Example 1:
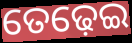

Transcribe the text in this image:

ତେଢ଼େଇ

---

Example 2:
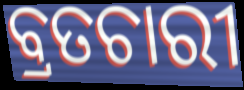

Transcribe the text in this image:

ବ୍ରତଚାରୀ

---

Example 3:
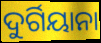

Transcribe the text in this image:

ଦୁର୍ଗିୟାନା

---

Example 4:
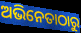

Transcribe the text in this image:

ଅଭିନେତାଠାରୁ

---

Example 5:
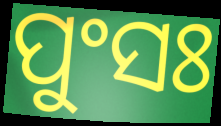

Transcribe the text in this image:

ପୁଂସଃ